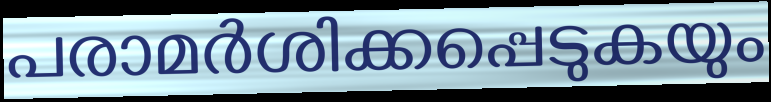
പരാമർശിക്കപ്പെടുകയും